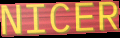
NICER